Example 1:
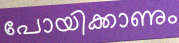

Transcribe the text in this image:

പോയിക്കാണും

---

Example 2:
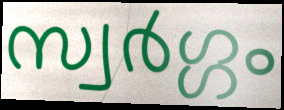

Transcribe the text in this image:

സ്വർഗ്ഗം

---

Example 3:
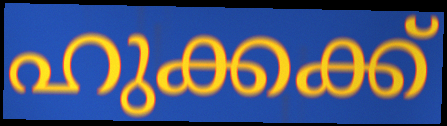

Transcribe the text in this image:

ഹുക്കക്ക്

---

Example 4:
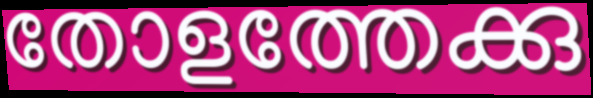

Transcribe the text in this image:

തോളത്തേക്കു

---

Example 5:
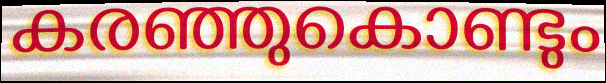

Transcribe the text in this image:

കരഞ്ഞുകൊണ്ടും